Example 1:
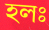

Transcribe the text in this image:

হলঃ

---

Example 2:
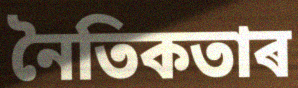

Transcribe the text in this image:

নৈতিকতাৰ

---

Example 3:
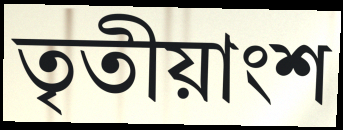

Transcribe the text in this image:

তৃতীয়াংশ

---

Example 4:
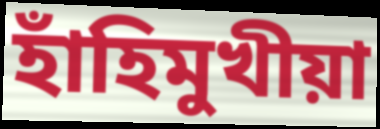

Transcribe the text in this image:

হাঁহিমুখীয়া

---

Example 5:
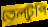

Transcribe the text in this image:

তেলটুপি